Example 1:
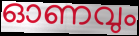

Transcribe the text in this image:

ഓണവും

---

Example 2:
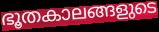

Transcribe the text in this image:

ഭൂതകാലങ്ങളുടെ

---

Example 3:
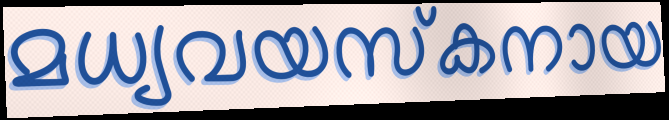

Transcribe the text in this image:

മധ്യവയസ്കനായ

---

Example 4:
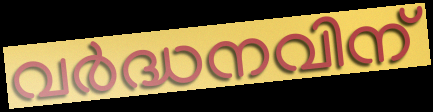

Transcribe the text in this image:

വർദ്ധനവിന്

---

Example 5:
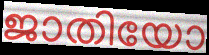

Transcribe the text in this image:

ജാതിയോ